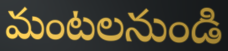
మంటలనుండి